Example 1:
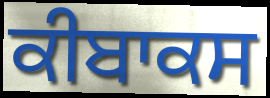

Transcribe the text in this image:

ਕੀਬਾਕਸ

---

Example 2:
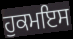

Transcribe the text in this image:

ਹੁਕਮਇਸ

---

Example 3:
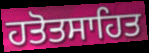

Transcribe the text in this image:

ਹਤੋਤਸਾਹਿਤ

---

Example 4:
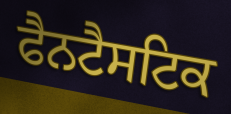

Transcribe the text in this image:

ਫੈਨਟੈਸਟਿਕ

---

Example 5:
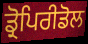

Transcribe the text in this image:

ਡ੍ਰੋਪਿਰੀਡੋਲ